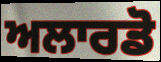
ਅਲਾਰਡੋ